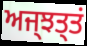
ਅਜ੍ਝਤ੍ਤਂ